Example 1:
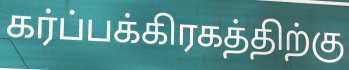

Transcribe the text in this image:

கர்ப்பக்கிரகத்திற்கு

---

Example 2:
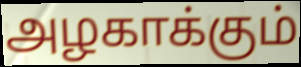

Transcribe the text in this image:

அழகாக்கும்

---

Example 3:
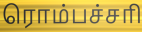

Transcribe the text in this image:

ரொம்பச்சரி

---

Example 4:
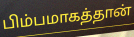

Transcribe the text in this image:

பிம்பமாகத்தான்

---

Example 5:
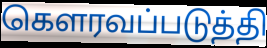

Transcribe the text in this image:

கெளரவப்படுத்தி